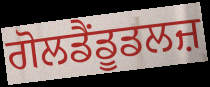
ਗੋਲਡੈਂਡੂਡਲਜ਼